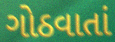
ગોઠવાતાં